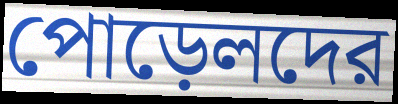
পোড়েলদের